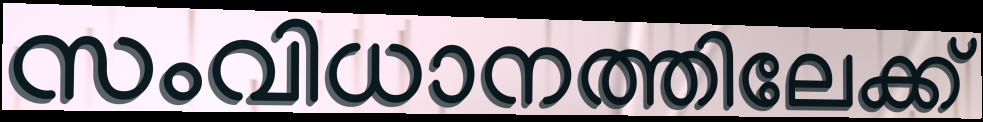
സംവിധാനത്തിലേക്ക്